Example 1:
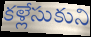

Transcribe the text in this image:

కళ్లేసుకుని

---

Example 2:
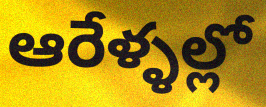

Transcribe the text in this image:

ఆరేళ్ళల్లో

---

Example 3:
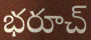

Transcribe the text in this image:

భరూచ్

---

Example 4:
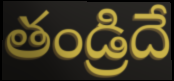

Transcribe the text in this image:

తండ్రిదే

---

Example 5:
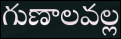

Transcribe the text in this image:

గుణాలవల్ల